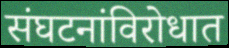
संघटनांविरोधात